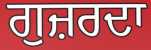
ਗੁਜ਼ਰਦਾ